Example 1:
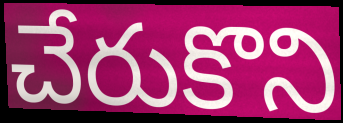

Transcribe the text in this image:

చేరుకొని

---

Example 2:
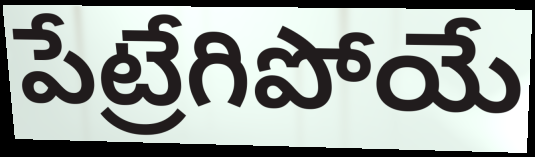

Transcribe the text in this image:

పేట్రేగిపోయే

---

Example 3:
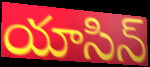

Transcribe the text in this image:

యాసిన్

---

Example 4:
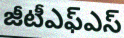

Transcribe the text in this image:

జీటీఎఫ్ఎస్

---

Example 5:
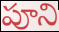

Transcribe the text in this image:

పూని